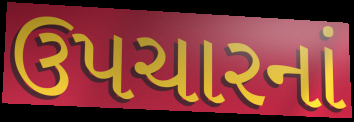
ઉપચારનાં